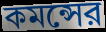
কমন্সের